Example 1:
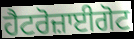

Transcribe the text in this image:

ਹੈਟਰੋਜ਼ਾਈਗੋਟ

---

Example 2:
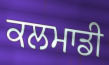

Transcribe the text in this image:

ਕਲਮਾਡੀ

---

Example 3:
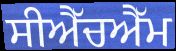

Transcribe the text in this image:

ਸੀਐੱਚਐੱਮ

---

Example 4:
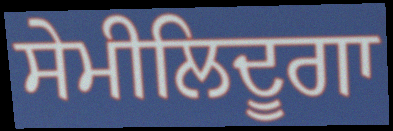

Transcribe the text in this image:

ਸੇਮੀਲਿਦੂਗਾ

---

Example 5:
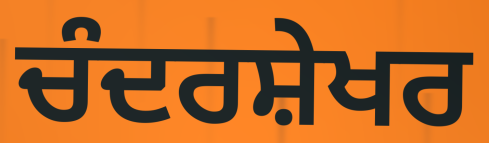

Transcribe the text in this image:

ਚੰਦਰਸ਼ੇਖਰ